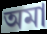
অমা